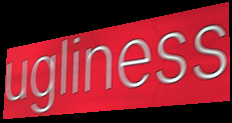
ugliness